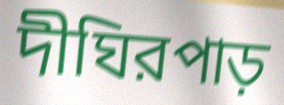
দীঘিরপাড়